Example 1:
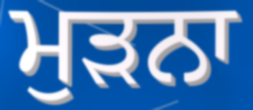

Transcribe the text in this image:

ਮੁਡ਼ਨਾ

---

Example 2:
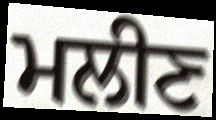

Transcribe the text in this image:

ਮਲੀਣ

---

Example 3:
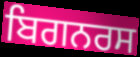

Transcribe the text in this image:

ਬਿਗਨਰਸ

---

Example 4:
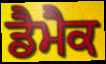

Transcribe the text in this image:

ਡੈਮੈਕ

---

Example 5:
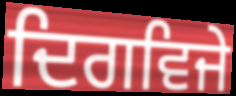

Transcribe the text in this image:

ਦਿਗਵਿਜੇ